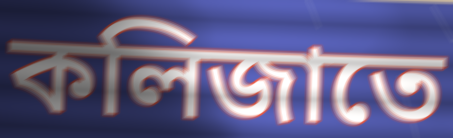
কলিজাতে